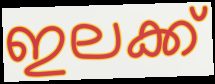
ഇലക്ക്